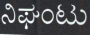
ನಿಘಂಟು